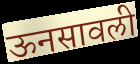
ऊनसावली